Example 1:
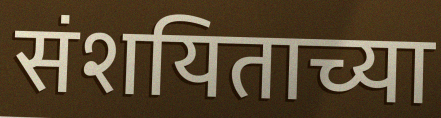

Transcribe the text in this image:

संशयिताच्या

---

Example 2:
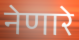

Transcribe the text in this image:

नेणारे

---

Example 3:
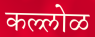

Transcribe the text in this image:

कल्लोळ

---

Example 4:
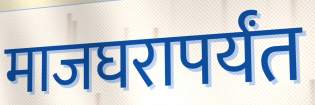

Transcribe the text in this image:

माजघरापर्यंत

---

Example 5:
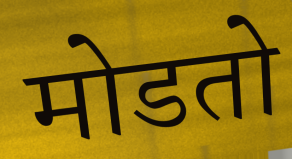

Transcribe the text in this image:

मोडतो